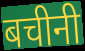
बचीनी